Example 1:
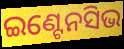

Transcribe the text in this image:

ଇଣ୍ଟେନସିଭ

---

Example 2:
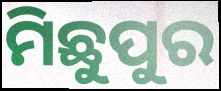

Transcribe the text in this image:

ମିଛୁପୁର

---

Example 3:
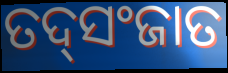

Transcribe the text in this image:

ତଦ୍‌ସଂଜାତ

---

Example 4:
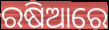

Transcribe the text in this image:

ରଷିଆରେ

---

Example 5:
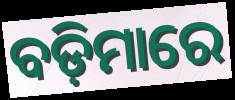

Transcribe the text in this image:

ବଡ଼ିମାରେ